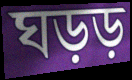
ঘড়ড়